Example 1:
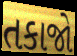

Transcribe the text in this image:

તકાજો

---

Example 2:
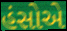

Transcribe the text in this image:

હંસોએ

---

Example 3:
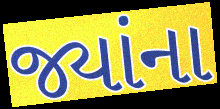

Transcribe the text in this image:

જ્યાંના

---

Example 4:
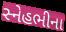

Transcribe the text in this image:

સ્નેહભીના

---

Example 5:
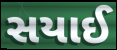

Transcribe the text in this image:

સયાઈ